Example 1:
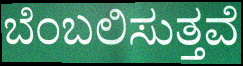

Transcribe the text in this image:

ಬೆಂಬಲಿಸುತ್ತವೆ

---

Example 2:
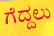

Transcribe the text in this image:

ಗೆದ್ದಲು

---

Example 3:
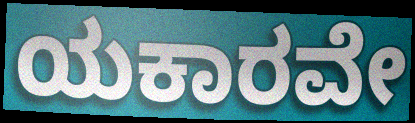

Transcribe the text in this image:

ಯಕಾರವೇ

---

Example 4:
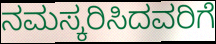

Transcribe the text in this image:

ನಮಸ್ಕರಿಸಿದವರಿಗೆ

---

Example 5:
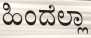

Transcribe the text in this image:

ಹಿಂದೆಲ್ಲಾ